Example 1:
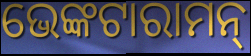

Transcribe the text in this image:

ଭେଙ୍କଟାରାମନ୍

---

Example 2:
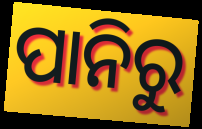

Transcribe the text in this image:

ପାନିରୁ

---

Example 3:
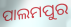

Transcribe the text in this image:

ପାଲମପୁର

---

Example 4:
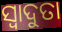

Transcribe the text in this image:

ସ୍ୱାଦୁତା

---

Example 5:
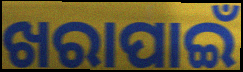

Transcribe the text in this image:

ଖରାପାଇଁ